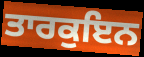
ਤਾਰਕੁਇਨ